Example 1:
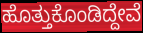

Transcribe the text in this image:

ಹೊತ್ತುಕೊಂಡಿದ್ದೇವೆ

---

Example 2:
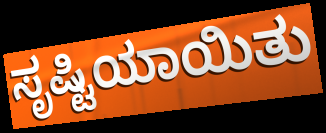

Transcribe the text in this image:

ಸೃಷ್ಟಿಯಾಯಿತು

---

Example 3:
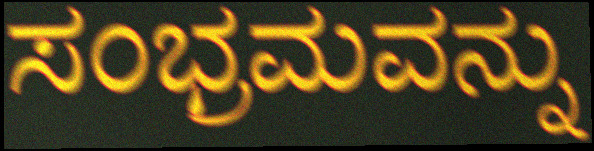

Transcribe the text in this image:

ಸಂಭ್ರಮವನ್ನು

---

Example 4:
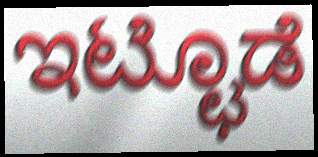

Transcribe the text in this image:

ಇಟ್ಟೊಡೆ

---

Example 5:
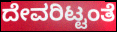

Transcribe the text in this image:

ದೇವರಿಟ್ಟಂತೆ